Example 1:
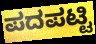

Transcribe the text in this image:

ಪದಪಟ್ಟಿ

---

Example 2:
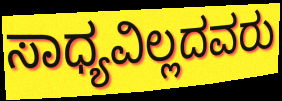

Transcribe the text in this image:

ಸಾಧ್ಯವಿಲ್ಲದವರು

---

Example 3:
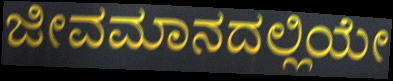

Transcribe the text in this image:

ಜೀವಮಾನದಲ್ಲಿಯೇ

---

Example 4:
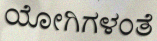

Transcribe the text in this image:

ಯೋಗಿಗಳಂತೆ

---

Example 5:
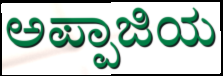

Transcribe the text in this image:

ಅಪ್ಪಾಜಿಯ